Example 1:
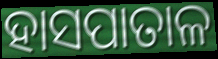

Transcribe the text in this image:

ହାସପାତାଳ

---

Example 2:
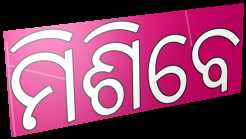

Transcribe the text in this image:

ମିଶିବେ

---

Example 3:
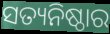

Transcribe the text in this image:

ସତ୍ୟନିଷ୍ଠାର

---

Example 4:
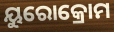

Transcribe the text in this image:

ୟୁରୋକ୍ରୋମ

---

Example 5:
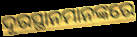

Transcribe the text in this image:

ଦୂରସ୍ଥାନମାନଙ୍କରେ